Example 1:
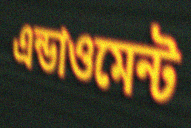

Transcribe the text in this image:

এন্ডাওমেন্ট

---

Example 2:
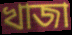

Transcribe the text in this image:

খাজা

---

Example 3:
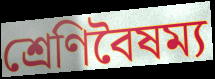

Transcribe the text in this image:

শ্রেণিবৈষম্য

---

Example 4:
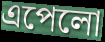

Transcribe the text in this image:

এপেলো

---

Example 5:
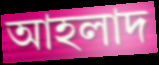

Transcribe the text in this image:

আহলাদ